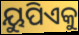
ୟୁପିଏକୁ